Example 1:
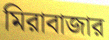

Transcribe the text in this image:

মিরাবাজার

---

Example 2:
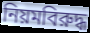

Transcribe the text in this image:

নিয়মবিরুদ্ধ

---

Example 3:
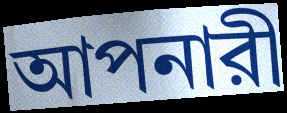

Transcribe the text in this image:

আপনারী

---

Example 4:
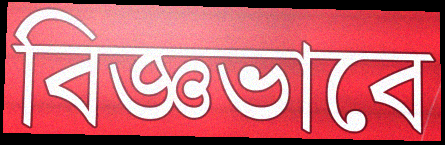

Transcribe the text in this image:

বিজ্ঞভাবে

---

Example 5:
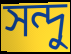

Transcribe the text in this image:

সন্দু